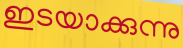
ഇടയാക്കുന്നു